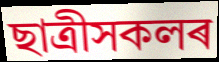
ছাত্ৰীসকলৰ